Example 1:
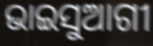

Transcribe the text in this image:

ଭାଇସୁଆଗୀ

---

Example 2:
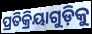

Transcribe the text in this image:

ପ୍ରତିକ୍ରିୟାଗୁଡ଼ିକୁ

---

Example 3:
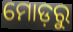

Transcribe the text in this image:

ମୋଡ଼ରୁ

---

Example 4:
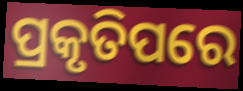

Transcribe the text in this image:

ପ୍ରକୃତିପରେ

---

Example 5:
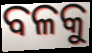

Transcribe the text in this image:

ବଳକୁ